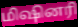
மிஷினரி